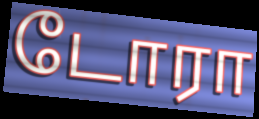
டோரா